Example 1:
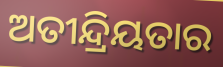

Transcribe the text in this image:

ଅତୀନ୍ଦ୍ରିୟତାର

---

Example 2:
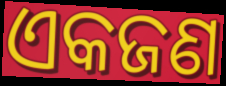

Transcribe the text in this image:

ଏକଜଣ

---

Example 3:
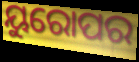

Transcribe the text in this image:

ୟୁରୋପର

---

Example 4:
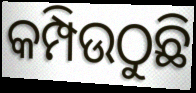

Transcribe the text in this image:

କମ୍ପିଉଠୁଛି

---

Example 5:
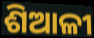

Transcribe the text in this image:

ଶିଆଳୀ